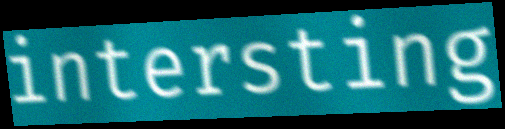
intersting